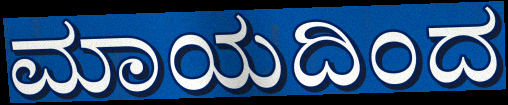
ಮಾಯದಿಂದ